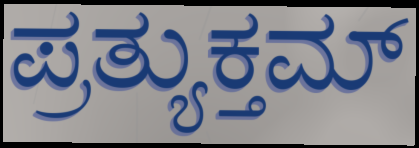
ಪ್ರತ್ಯುಕ್ತಮ್